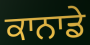
ਕਾਨਾਡੇ